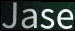
Jase